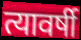
त्यावर्षी